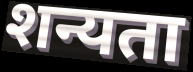
शन्यता